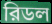
রিডল